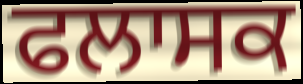
ਫਲਾਸਕ